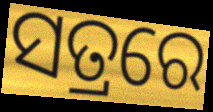
ସତ୍ରରେ